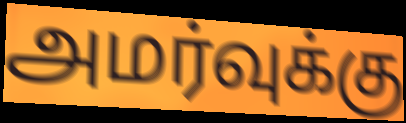
அமர்வுக்கு